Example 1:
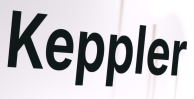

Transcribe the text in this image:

Keppler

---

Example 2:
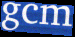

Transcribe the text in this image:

gcm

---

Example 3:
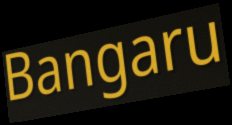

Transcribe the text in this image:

Bangaru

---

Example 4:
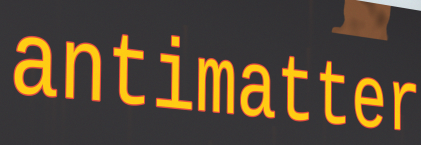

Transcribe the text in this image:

antimatter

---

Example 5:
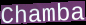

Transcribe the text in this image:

Chamba